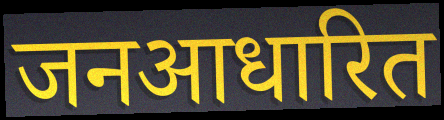
जनआधारित